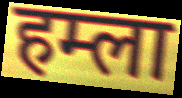
हम्ला